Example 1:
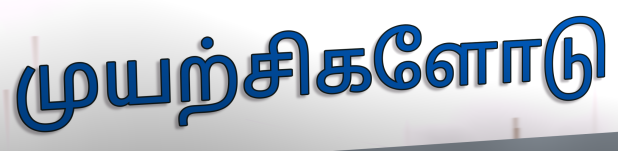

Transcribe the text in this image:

முயற்சிகளோடு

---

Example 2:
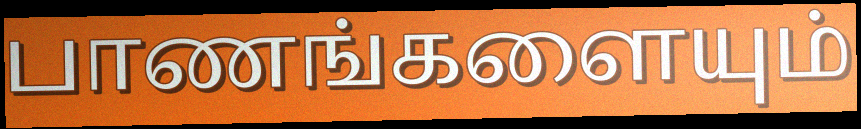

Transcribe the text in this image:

பாணங்களையும்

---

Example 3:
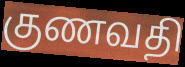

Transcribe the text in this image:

குணவதி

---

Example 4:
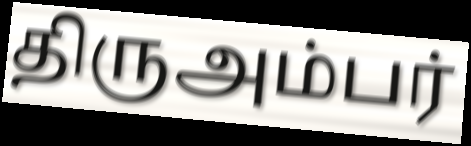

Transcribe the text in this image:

திருஅம்பர்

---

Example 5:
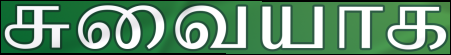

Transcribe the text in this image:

சுவையாக